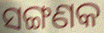
ସଙ୍ଗଣକ